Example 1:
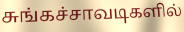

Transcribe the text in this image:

சுங்கச்சாவடிகளில்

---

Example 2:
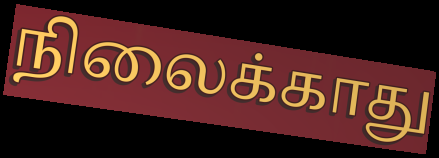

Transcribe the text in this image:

நிலைக்காது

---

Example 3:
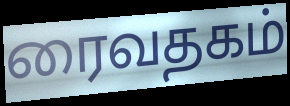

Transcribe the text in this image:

ரைவதகம்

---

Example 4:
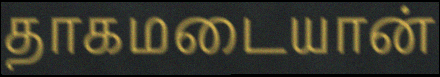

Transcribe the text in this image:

தாகமடையான்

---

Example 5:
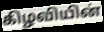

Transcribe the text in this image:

கிழவியின்